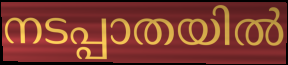
നടപ്പാതയിൽ